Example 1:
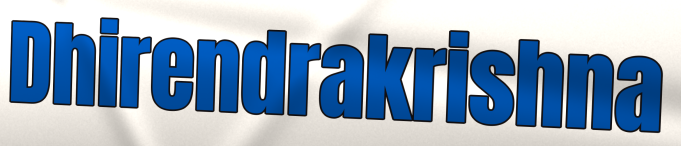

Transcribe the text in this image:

Dhirendrakrishna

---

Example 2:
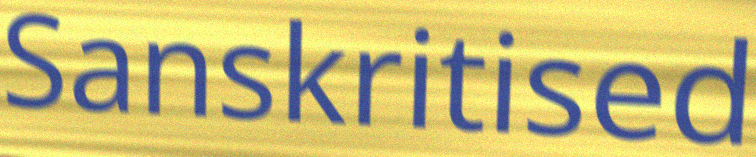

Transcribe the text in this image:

Sanskritised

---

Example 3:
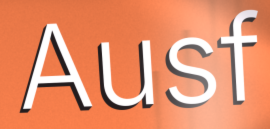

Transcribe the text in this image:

Ausf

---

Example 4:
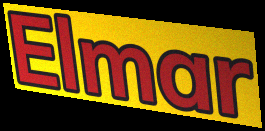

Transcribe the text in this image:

Elmar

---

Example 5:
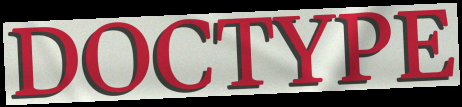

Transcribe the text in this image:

DOCTYPE